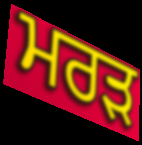
ਮਰੜ